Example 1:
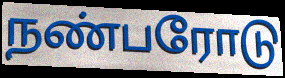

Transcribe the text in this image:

நண்பரோடு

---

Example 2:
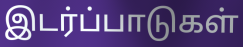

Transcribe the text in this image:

இடர்ப்பாடுகள்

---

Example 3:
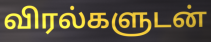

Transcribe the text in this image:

விரல்களுடன்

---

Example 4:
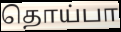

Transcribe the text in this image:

தொய்பா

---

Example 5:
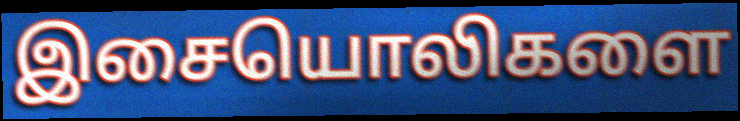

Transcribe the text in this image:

இசையொலிகளை